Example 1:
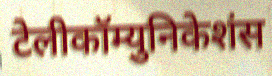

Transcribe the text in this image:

टेलीकॉम्युनिकेशंस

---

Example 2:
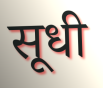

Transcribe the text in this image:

सूधी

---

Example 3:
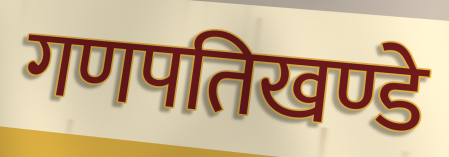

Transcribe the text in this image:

गणपतिखण्डे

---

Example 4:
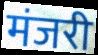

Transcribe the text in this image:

मंजरी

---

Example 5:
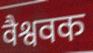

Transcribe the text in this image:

वैश्ववक